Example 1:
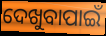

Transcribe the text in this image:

ଦେଖୁବାପାଇଁ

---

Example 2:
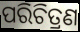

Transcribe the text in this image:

ପରିଚିତ୍ରଣ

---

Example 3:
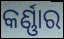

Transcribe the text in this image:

କର୍ଣ୍ଣାର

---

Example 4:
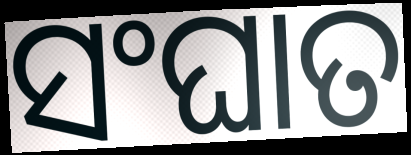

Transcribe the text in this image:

ସଂଘାତ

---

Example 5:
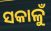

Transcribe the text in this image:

ସକାଳୁଁ